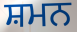
ਸ਼ਮਨ